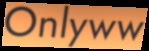
Onlyww